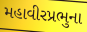
મહાવીરપ્રભુના